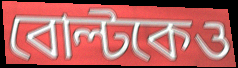
বোল্টকেও